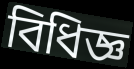
বিধিজ্ঞ